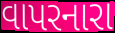
વાપરનારા